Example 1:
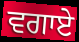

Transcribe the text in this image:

ਵਗਾਏ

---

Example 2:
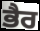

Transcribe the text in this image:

ਭੈਰ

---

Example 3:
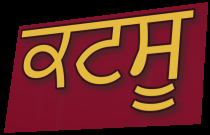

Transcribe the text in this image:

ਕਟਸੂ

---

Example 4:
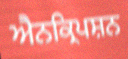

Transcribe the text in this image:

ਐਨਕ੍ਰਿਪਸ਼ਨ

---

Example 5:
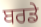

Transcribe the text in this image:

ਬਰਡੇ